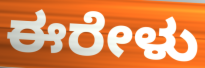
ಈರೇಳು